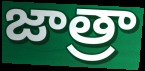
జాత్రా